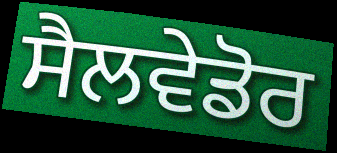
ਸੈਲਵੇਡੋਰ